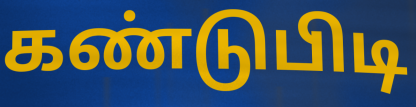
கண்டுபிடி